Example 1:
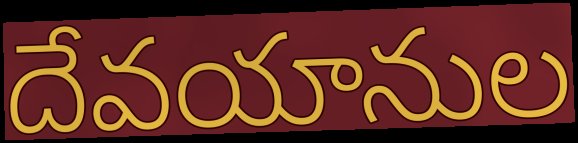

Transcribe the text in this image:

దేవయానుల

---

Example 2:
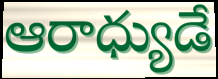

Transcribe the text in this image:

ఆరాధ్యుడే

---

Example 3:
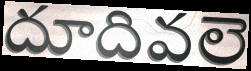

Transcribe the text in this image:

దూదివలె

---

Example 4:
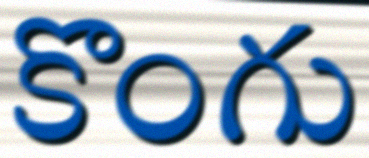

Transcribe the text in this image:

కొంగు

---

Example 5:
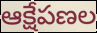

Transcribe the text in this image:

ఆక్షేపణల